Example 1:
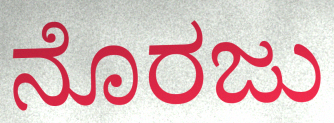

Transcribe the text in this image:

ನೊರಜು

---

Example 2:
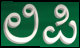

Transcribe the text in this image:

ಲಿಪಿ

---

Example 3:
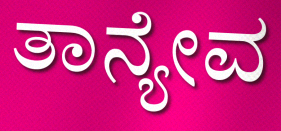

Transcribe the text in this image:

ತಾನ್ಯೇವ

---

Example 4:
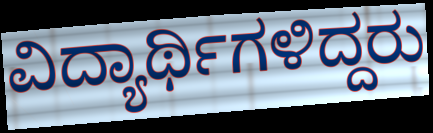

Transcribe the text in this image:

ವಿದ್ಯಾರ್ಥಿಗಳಿದ್ದರು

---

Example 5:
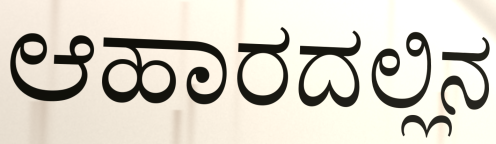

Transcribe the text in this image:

ಆಹಾರದಲ್ಲಿನ